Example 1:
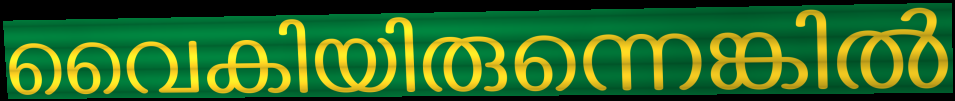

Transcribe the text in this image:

വൈകിയിരുന്നെങ്കിൽ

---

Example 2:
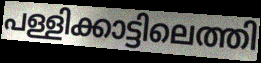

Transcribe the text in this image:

പള്ളിക്കാട്ടിലെത്തി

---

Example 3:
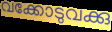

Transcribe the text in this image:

വക്കോടുവക്കു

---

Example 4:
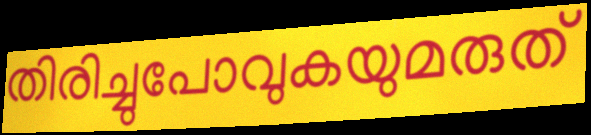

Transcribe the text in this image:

തിരിച്ചുപോവുകയുമരുത്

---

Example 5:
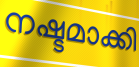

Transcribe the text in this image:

നഷ്ടമാക്കി